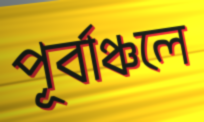
পূর্বাঞ্চলে